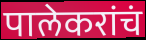
पालेकरांचं